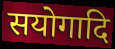
सयोगादि